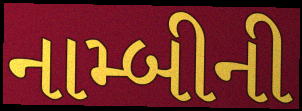
નામ્બીની